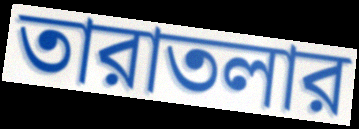
তারাতলার